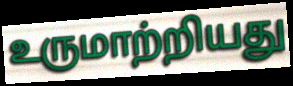
உருமாற்றியது